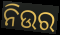
ନିଉର